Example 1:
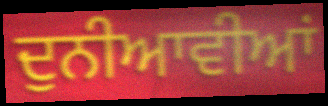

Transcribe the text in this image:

ਦੁਨੀਆਵੀਆਂ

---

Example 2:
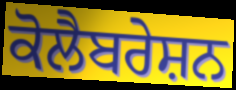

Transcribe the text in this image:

ਕੋਲੈਬਰੇਸ਼ਨ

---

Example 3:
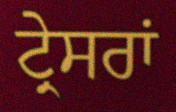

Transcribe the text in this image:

ਟ੍ਰੇਸਰਾਂ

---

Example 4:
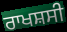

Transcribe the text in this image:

ਰਾਖਸ਼ਸੀ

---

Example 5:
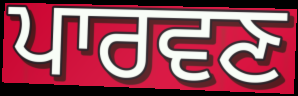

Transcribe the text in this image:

ਪਾਰਵਣ